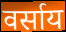
वर्साय